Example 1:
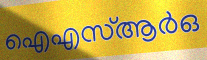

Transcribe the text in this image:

ഐഎസ്ആർഒ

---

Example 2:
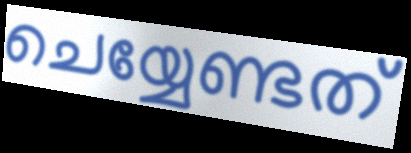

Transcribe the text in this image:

ചെയ്യേണ്ടത്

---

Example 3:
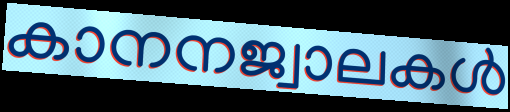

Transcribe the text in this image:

കാനനജ്വാലകൾ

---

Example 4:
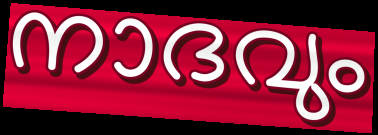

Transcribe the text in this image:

നാദവും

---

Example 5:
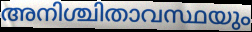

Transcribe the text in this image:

അനിശ്ചിതാവസ്ഥയും